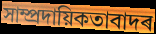
সাম্প্ৰদায়িকতাবাদৰ